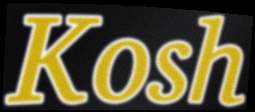
Kosh